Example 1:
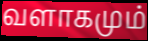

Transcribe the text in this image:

வளாகமும்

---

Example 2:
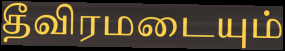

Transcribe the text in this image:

தீவிரமடையும்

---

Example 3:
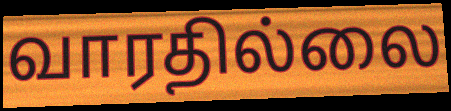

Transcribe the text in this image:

வாரதில்லை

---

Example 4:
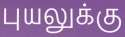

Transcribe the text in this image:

புயலுக்கு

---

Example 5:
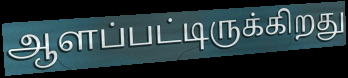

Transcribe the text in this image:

ஆளப்பட்டிருக்கிறது